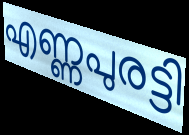
എണ്ണപുരട്ടി